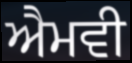
ਐਮਵੀ